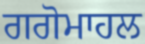
ਗਗੋਮਾਹਲ